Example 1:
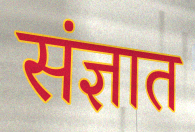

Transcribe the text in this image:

संज्ञात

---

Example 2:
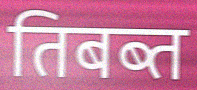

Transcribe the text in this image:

तिबब्त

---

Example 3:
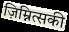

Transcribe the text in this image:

ज़िम्नित्सकी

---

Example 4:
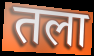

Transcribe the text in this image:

तला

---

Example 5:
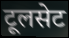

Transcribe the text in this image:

टूलसेट